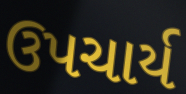
ઉપચાર્ય